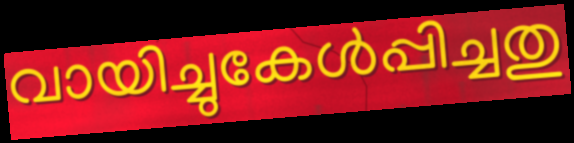
വായിച്ചുകേൾപ്പിച്ചതു